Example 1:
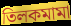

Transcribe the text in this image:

তিলকমামা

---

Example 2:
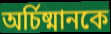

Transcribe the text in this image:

অর্চিষ্মানকে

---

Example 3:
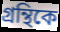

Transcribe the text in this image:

গ্রন্থিকে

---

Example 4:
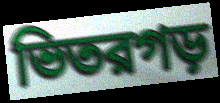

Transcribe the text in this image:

ভিতরগড়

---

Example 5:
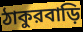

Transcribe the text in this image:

ঠাকুরবাড়ি